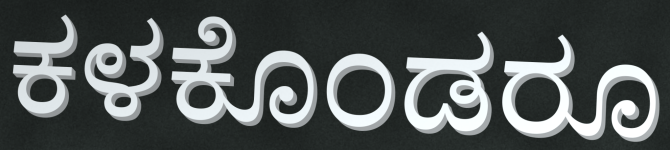
ಕಳಕೊಂಡರೂ